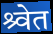
श्र्वेत